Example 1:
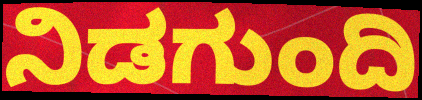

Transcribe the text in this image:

ನಿಡಗುಂದಿ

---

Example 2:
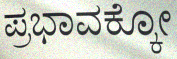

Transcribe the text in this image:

ಪ್ರಭಾವಕ್ಕೋ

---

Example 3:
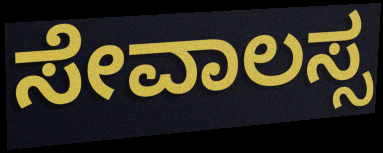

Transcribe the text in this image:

ಸೇವಾಲಸ್ಸ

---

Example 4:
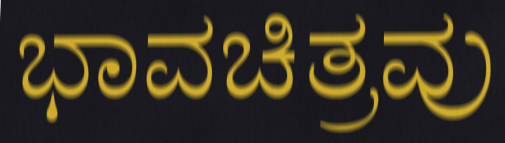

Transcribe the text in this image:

ಭಾವಚಿತ್ರವು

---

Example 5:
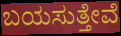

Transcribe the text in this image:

ಬಯಸುತ್ತೇವೆ